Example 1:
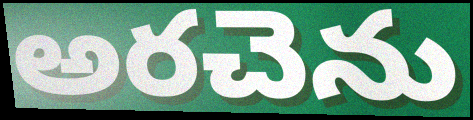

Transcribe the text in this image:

అరచెను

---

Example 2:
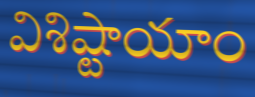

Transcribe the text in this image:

విశిష్టాయాం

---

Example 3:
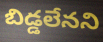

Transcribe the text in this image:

బిడ్డలేనని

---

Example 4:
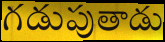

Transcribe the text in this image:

గడుపుతాడు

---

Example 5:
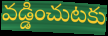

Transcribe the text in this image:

వడ్డించుటకు